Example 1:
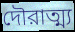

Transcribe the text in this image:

দৌরাত্ম্য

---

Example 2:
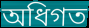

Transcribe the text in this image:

অধিগত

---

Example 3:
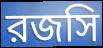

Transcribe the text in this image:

রজসি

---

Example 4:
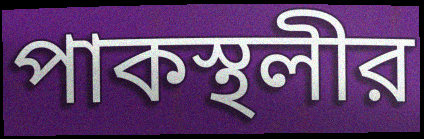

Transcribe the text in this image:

পাকস্থলীর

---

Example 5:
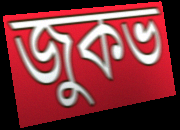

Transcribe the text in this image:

জুকভ